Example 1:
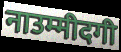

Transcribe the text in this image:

नाउम्मीदगी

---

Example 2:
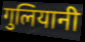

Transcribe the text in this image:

गुलियानी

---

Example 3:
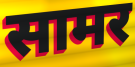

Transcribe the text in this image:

सामर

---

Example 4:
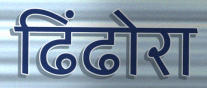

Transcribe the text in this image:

ढिंढोरा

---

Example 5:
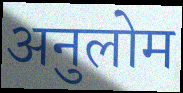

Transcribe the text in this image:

अनुलोम